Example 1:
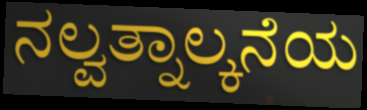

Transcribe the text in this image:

ನಲ್ವತ್ನಾಲ್ಕನೆಯ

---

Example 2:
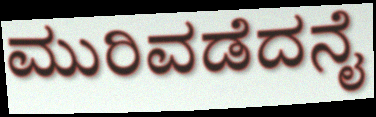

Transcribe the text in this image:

ಮುರಿವಡೆದನೈ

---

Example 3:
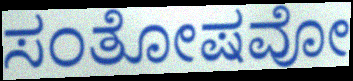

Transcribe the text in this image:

ಸಂತೋಷವೋ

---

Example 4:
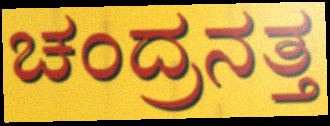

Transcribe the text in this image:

ಚಂದ್ರನತ್ತ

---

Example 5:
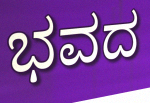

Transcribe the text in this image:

ಭವದ